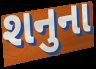
શનુના